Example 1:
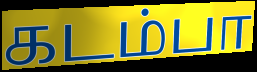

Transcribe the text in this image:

கடம்பா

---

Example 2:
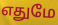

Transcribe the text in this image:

எதுமே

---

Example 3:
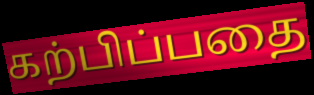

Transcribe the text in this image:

கற்பிப்பதை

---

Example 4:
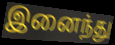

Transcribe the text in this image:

இனைந்து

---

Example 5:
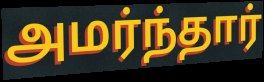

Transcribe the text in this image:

அமர்ந்தார்